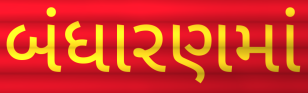
બંધારણમાં